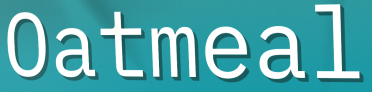
Oatmeal